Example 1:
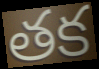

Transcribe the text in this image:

తక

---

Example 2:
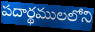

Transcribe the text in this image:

పదార్థములలోని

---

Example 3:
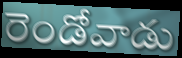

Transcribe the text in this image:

రెండోవాడు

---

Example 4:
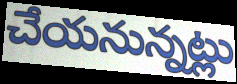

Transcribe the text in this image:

చేయనున్నట్లు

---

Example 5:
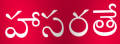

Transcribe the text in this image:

హాసరతే